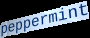
peppermint